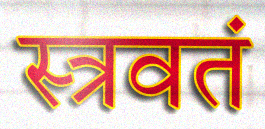
स्त्रवतं